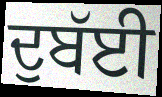
ਦੁਬੱਈ